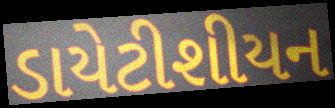
ડાયેટીશીયન